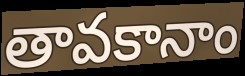
తావకానాం